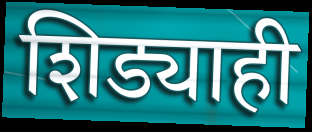
शिड्याही